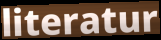
literatur